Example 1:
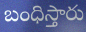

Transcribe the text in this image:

బంధిస్తారు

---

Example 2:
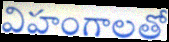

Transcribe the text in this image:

విహంగాలతో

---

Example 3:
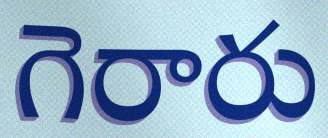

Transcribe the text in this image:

గెరారు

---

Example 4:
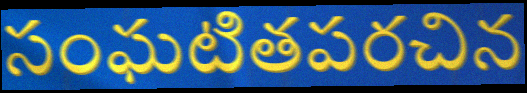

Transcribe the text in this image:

సంఘటితపరచిన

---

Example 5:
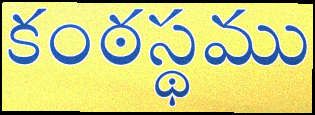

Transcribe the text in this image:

కంఠస్థము